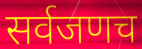
सर्वजणच